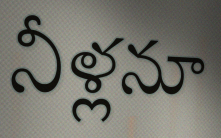
నీళ్లనూ